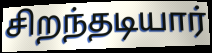
சிறந்தடியார்